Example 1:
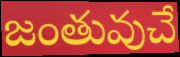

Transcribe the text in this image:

జంతువుచే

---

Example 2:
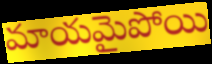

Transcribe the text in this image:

మాయమైపోయి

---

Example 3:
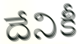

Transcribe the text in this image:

దేనికీ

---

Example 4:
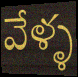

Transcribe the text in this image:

వేళ్ళ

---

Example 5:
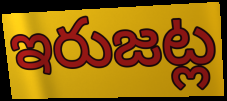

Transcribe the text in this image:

ఇరుజట్ల